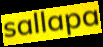
sallapa